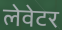
लेवेटर